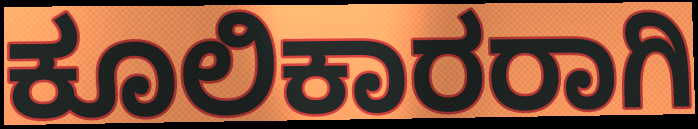
ಕೂಲಿಕಾರರಾಗಿ